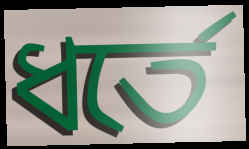
ধর্তে